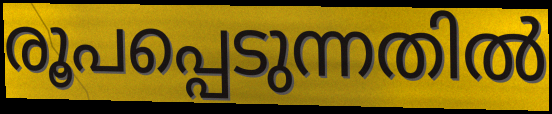
രൂപപ്പെടുന്നതിൽ